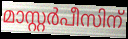
മാസ്റ്റർപീസിന്